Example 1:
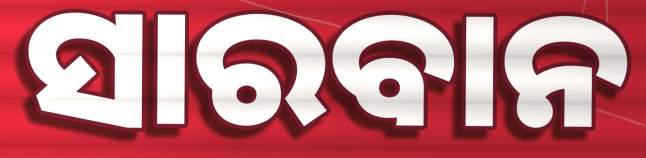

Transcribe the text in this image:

ସାରବାନ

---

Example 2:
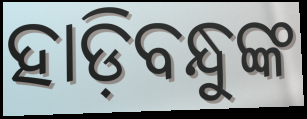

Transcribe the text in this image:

ହାଡ଼ିବନ୍ଧୁଙ୍କ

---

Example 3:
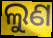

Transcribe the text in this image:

ଲୁଣ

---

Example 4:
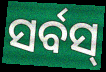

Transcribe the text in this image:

ସର୍ବସ୍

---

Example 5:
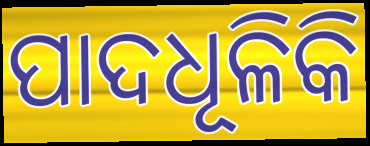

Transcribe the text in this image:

ପାଦଧୂଳିକି